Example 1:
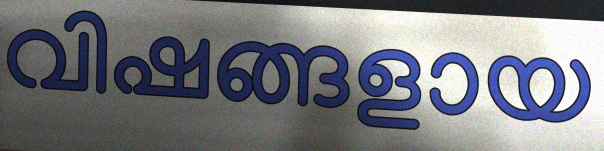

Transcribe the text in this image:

വിഷങ്ങളായ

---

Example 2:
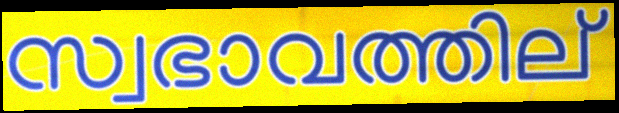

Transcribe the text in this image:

സ്വഭാവത്തില്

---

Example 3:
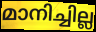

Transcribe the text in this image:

മാനിച്ചില്ല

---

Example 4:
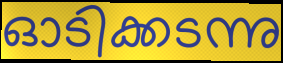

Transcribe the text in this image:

ഓടിക്കടന്നു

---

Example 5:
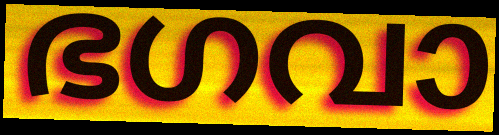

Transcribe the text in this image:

ഭഗവാ